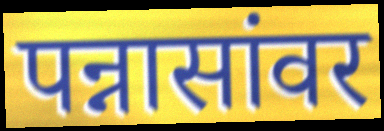
पन्नासांवर